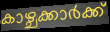
കാഴ്ചക്കാർക്ക്